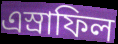
এস্রাফিল